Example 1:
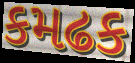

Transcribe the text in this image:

કમઢક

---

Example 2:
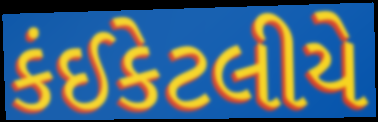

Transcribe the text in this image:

કંઈકેટલીયે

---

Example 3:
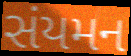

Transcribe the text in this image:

સંયમન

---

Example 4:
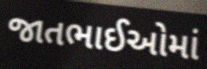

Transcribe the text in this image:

જાતભાઈઓમાં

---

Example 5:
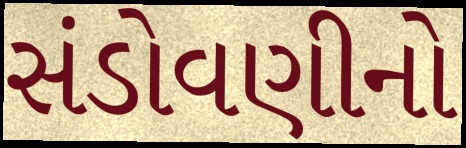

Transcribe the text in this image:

સંડોવણીનો